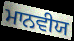
ਮਾਨਵੀਯ